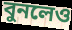
বুনলেও